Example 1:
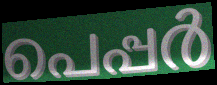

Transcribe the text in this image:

പെപ്പർ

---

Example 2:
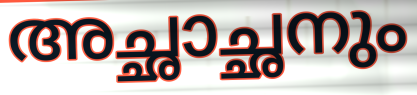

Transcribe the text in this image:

അച്ഛാച്ഛനും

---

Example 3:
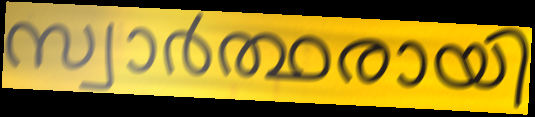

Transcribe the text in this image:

സ്വാർത്ഥരായി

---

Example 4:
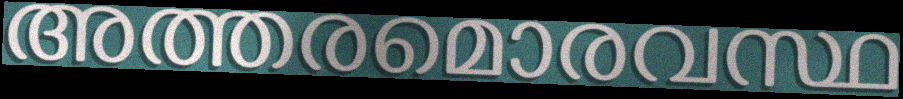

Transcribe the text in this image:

അത്തരമൊരവസ്ഥ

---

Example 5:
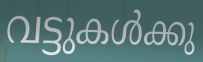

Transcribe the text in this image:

വട്ടുകൾക്കു